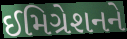
ઈમિગ્રેશનને